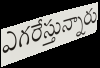
ఎగరేస్తున్నారు